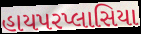
હાયપરપ્લાસિયા